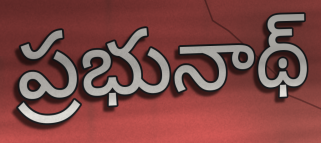
ప్రభునాథ్